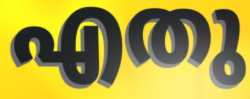
എതു